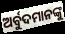
ଅର୍ବୁଦମାନଙ୍କୁ